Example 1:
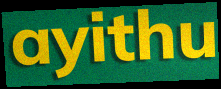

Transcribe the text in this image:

ayithu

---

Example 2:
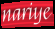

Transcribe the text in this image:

nariye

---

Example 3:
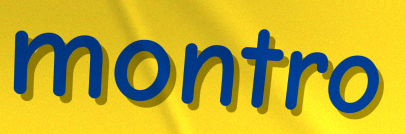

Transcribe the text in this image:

montro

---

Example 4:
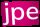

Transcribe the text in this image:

jpe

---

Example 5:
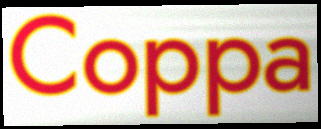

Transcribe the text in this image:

Coppa